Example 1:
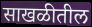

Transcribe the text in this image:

साखळीतील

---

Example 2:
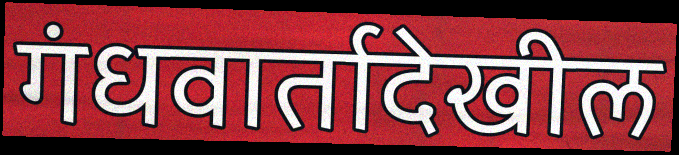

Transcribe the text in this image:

गंधवार्तादेखील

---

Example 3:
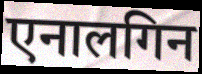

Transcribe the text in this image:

एनालगिन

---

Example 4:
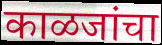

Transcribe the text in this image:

काळजांचा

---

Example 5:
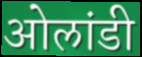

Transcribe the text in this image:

ओलांडी